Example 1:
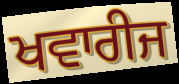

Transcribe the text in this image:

ਖਵਾਰੀਜ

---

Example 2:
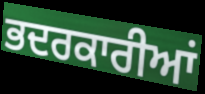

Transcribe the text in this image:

ਭਦਰਕਾਰੀਆਂ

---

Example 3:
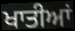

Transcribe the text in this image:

ਖਾਤੀਆਂ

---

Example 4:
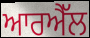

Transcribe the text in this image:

ਆਰਐੱਲ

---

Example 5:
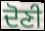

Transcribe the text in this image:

ਦੋਣੀ